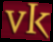
vk